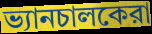
ভ্যানচালকেরা